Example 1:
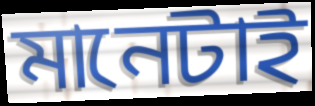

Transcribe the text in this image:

মানেটাই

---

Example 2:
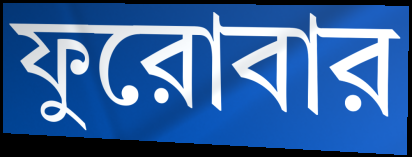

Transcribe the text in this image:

ফুরোবার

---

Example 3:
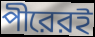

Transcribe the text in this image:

পীরেরই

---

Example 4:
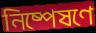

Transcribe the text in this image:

নিষ্পেষণে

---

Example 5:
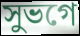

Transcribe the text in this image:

সুভগে